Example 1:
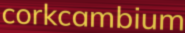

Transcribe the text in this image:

corkcambium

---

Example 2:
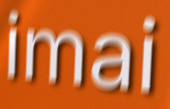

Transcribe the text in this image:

imai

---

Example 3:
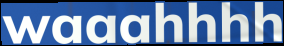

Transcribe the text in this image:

waaahhhh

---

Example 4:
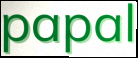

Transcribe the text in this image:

papal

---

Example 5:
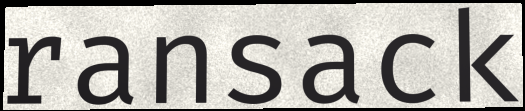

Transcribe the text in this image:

ransack